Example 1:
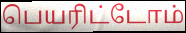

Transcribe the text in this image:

பெயரிட்டோம்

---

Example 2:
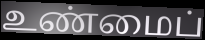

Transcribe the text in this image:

உண்மைப்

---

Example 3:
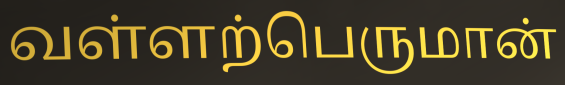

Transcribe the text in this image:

வள்ளற்பெருமான்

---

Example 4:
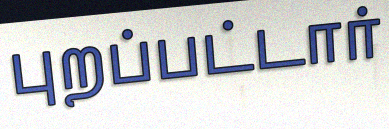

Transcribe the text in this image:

புறப்பட்டார்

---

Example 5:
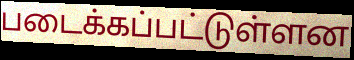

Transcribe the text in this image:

படைக்கப்பட்டுள்ளன